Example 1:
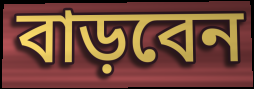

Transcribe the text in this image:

বাড়বেন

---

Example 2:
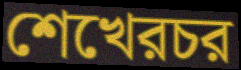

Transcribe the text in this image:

শেখেরচর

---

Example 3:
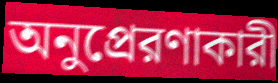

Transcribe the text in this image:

অনুপ্রেরণাকারী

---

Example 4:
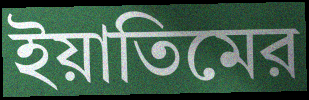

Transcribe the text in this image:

ইয়াতিমের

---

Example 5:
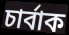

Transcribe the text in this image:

চার্বাক